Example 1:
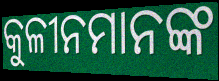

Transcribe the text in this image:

କୁଳୀନମାନଙ୍କ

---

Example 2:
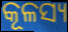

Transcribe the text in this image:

କୂଳସ୍ଯ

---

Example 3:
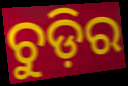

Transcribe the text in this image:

ଚୁଡ଼ିର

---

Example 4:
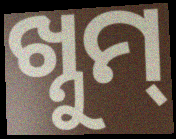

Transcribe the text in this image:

ଖ୍ନୁମ୍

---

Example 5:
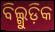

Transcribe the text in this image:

ବିଲ୍ଗୁଡ଼ିକ